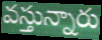
వస్తున్నారు